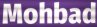
Mohbad